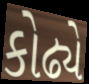
કોઢ્યે